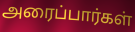
அரைப்பார்கள்